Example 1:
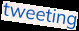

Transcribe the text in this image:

tweeting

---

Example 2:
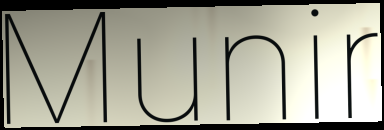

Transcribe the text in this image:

Munir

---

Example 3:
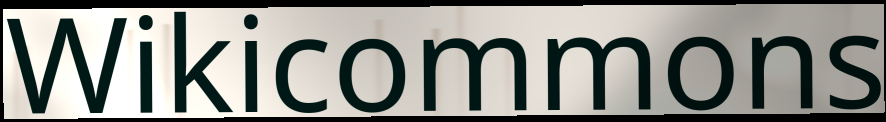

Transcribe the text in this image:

Wikicommons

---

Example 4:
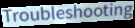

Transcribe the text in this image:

Troubleshooting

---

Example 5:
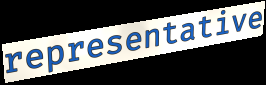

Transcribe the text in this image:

representative